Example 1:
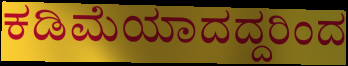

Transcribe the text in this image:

ಕಡಿಮೆಯಾದದ್ದರಿಂದ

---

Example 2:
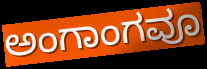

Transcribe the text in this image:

ಅಂಗಾಂಗವೂ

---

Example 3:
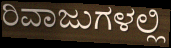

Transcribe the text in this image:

ರಿವಾಜುಗಳಲ್ಲಿ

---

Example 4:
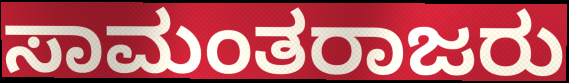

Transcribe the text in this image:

ಸಾಮಂತರಾಜರು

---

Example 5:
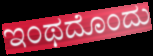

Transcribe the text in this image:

ಇಂಥದೊಂದು